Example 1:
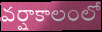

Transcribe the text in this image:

వర్షాకాలంలో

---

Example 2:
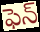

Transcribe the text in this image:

ఫెన్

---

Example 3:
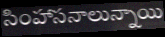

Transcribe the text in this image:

సింహాసనాలున్నాయి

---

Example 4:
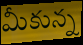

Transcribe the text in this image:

మీకున్న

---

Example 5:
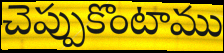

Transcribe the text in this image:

చెప్పుకొంటాము